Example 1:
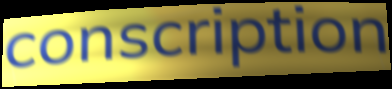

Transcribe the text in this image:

conscription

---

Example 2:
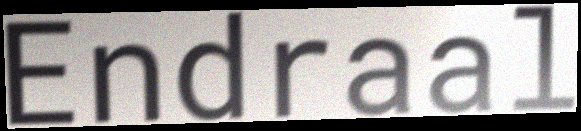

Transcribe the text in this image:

Endraal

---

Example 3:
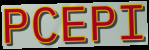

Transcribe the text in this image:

PCEPI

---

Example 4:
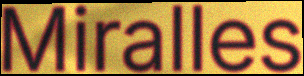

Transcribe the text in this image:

Miralles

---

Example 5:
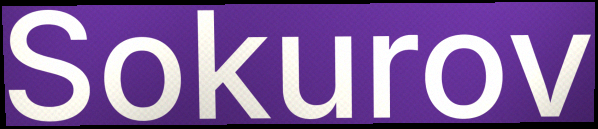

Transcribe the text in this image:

Sokurov